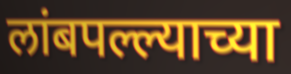
लांबपल्ल्याच्या